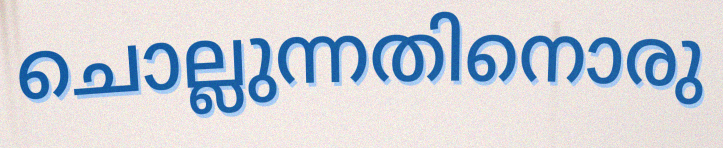
ചൊല്ലുന്നതിനൊരു